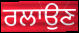
ਰਲਾਉਣ